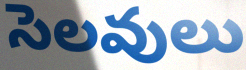
సెలవులు